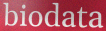
biodata